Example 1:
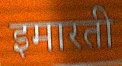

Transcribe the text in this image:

इमारती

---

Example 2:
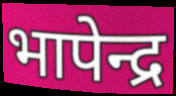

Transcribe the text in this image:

भापेन्द्र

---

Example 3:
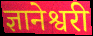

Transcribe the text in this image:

ज्ञानेश्वरी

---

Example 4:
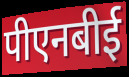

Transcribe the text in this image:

पीएनबीई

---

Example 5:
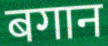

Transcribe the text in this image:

बगान